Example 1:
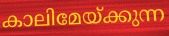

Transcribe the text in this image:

കാലിമേയ്ക്കുന്ന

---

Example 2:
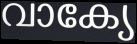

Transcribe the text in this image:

വാക്യേ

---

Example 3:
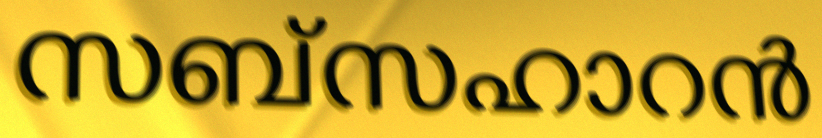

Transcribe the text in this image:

സബ്സഹാറൻ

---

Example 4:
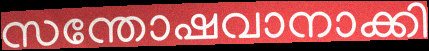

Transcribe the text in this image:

സന്തോഷവാനാക്കി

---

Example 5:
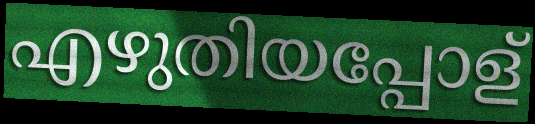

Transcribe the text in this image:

എഴുതിയപ്പോള്